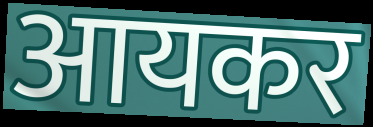
आयकर